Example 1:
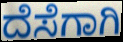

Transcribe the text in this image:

ದೆಸೆಗಾಗಿ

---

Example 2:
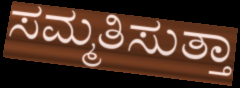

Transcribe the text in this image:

ಸಮ್ಮತಿಸುತ್ತಾ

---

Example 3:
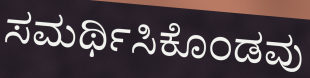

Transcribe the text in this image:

ಸಮರ್ಥಿಸಿಕೊಂಡವು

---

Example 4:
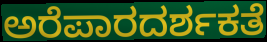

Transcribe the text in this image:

ಅರೆಪಾರದರ್ಶಕತೆ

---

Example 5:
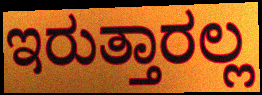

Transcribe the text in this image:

ಇರುತ್ತಾರಲ್ಲ